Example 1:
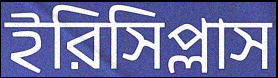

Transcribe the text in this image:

ইরিসিপ্লাস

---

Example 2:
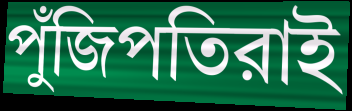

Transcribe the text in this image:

পুঁজিপতিরাই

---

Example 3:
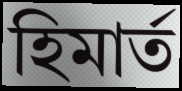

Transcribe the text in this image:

হিমার্ত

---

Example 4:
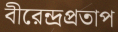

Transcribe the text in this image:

বীরেন্দ্রপ্রতাপ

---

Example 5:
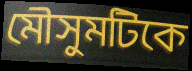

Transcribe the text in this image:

মৌসুমটিকে